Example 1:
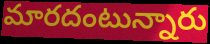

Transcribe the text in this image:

మారదంటున్నారు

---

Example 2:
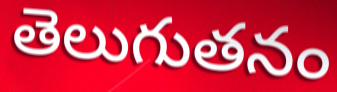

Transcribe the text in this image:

తెలుగుతనం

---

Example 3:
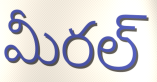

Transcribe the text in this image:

మీరల్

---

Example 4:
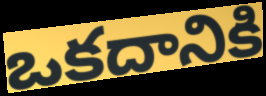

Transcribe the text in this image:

ఒకదానికి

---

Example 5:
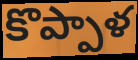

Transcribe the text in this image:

కొప్పాళ